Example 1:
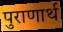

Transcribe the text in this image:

पुराणार्थ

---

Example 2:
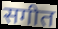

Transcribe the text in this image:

सगीत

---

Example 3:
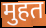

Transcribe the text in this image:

मुहत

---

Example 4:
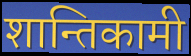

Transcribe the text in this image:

शान्तिकामी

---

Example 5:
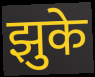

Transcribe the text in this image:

झुके